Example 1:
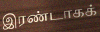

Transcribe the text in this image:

இரண்டாகக்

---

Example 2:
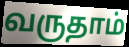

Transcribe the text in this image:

வருதாம்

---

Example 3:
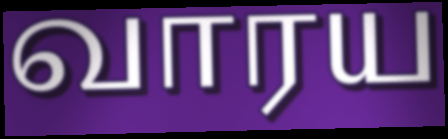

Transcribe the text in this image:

வாரய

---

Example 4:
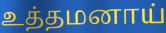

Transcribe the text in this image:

உத்தமனாய்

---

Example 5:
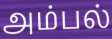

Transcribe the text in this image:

அம்பல்